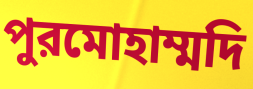
পুরমোহাম্মদি